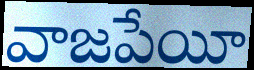
వాజపేయీ